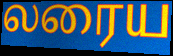
லரைய